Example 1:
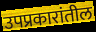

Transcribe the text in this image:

उपप्रकारांतील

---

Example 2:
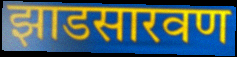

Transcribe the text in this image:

झाडसारवण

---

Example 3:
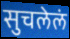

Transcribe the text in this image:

सुचलेलं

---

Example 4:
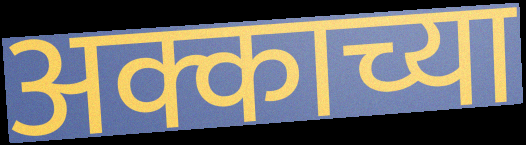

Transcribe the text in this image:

अक्काच्या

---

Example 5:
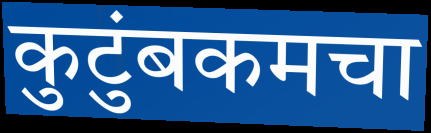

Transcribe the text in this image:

कुटुंबकमचा